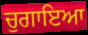
ਚੁਗਾਇਆ